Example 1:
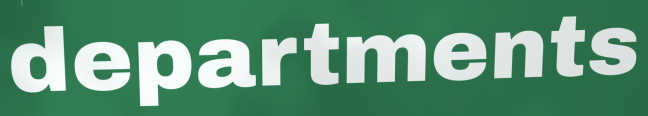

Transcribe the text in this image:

departments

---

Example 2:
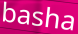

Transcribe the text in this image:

basha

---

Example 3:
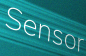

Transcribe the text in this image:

Sensor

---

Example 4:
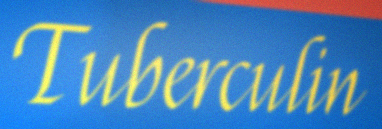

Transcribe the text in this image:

Tuberculin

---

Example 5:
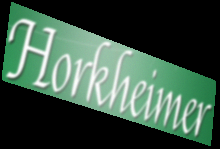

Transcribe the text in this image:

Horkheimer